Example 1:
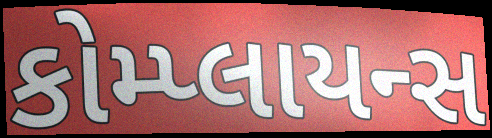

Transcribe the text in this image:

કોમ્પ્લાયન્સ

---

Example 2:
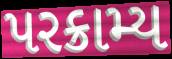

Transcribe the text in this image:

પરક્રામ્ય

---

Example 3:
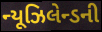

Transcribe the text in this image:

ન્યૂઝિલેન્ડની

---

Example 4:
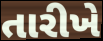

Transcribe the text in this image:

તારીખે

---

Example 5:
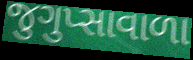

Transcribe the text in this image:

જુગુપ્સાવાળા